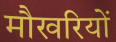
मौखरियों